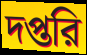
দপ্তরি